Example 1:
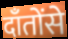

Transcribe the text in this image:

दाँतोंसे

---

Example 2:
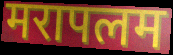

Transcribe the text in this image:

मरापलम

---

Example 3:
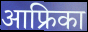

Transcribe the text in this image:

आफ्रिका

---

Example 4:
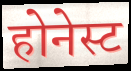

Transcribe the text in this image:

होनेस्ट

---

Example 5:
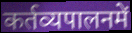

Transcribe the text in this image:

कर्तव्यपालनमें